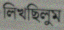
লিখছিলুম